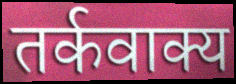
तर्कवाक्य